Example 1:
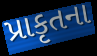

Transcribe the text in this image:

પ્રાકૃતના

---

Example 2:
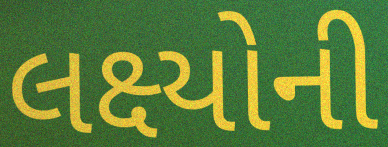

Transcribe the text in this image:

લક્ષ્યોની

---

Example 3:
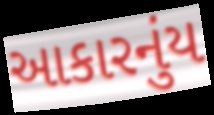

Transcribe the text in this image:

આકારનુંય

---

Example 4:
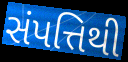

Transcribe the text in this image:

સંપત્તિથી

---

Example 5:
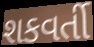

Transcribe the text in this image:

શકવર્તી